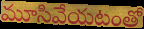
మూసివేయటంతో